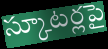
స్కూటర్లపై